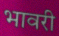
भावरी